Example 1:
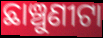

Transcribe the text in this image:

ଛାଞ୍ଚୁଣୀଟା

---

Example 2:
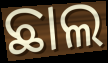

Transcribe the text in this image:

ଛାଲ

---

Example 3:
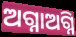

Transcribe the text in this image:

ଅଗ୍ନାଅଗ୍ନି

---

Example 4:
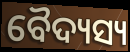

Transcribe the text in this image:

ବୈଦ୍ୟସ୍ୟ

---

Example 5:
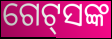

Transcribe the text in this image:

ଗେଟ୍‌ସଙ୍କ